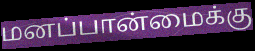
மனப்பான்மைக்கு